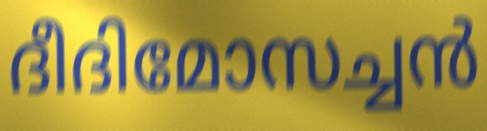
ദീദിമോസച്ചൻ